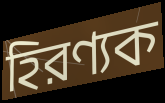
হিরণ্যক